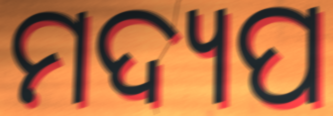
ମଦ୍ୟପ